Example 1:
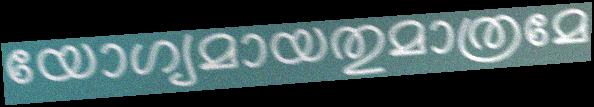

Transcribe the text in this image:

യോഗ്യമായതുമാത്രമേ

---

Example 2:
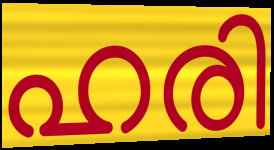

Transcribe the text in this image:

ഹരി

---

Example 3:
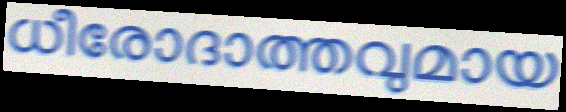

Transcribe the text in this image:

ധീരോദാത്തവുമായ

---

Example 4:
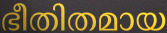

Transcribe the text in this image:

ഭീതിതമായ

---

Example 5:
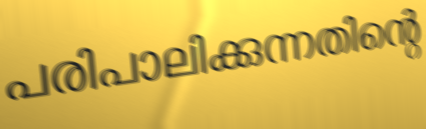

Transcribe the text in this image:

പരിപാലിക്കുന്നതിന്റെ